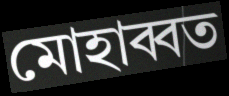
মোহাব্বত